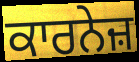
ਕਾਰਨੇਜ਼